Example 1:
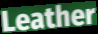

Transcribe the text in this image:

Leather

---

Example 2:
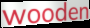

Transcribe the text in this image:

wooden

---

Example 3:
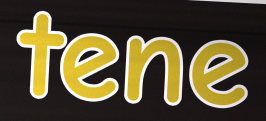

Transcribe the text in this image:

tene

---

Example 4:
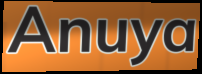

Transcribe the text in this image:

Anuya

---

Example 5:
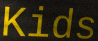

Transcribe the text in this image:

Kids